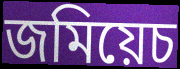
জমিয়েচ